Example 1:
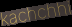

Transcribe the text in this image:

kachchhi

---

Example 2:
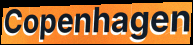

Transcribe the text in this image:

Copenhagen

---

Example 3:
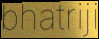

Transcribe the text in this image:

bhatriji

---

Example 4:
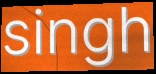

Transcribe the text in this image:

singh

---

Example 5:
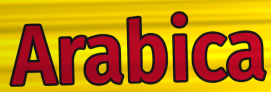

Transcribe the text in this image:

Arabica